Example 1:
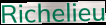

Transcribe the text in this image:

Richelieu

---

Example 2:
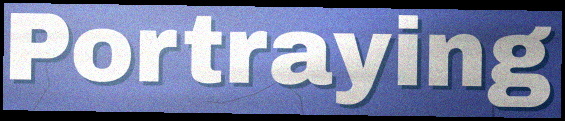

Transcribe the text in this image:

Portraying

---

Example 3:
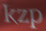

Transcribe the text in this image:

kzp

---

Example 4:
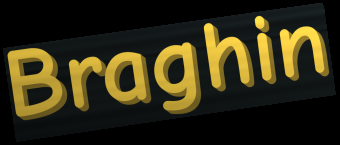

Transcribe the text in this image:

Braghin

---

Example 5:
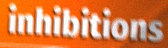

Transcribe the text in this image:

inhibitions